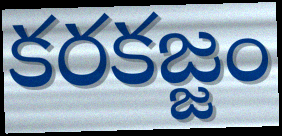
కరకజ్జం